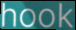
hook